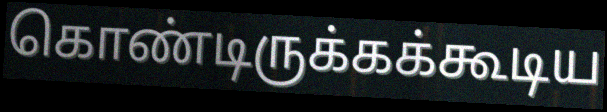
கொண்டிருக்கக்கூடிய